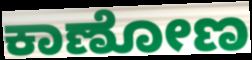
ಕಾಣೋಣ